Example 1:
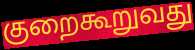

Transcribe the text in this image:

குறைகூறுவது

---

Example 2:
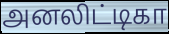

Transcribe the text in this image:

அனலிட்டிகா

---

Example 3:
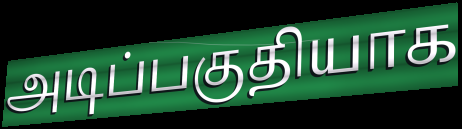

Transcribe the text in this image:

அடிப்பகுதியாக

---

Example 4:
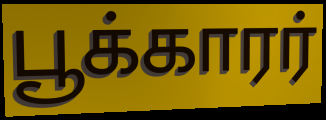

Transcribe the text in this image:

பூக்காரர்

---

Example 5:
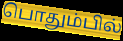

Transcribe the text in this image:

பொதும்பில்